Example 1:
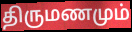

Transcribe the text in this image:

திருமணமும்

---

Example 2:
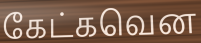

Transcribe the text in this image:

கேட்கவென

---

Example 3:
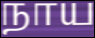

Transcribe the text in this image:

நாய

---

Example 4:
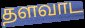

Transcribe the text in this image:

தளவாட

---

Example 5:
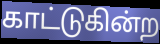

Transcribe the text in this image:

காட்டுகின்ற